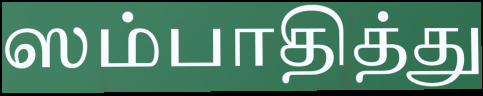
ஸம்பாதித்து